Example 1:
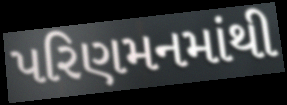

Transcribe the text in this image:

પરિણમનમાંથી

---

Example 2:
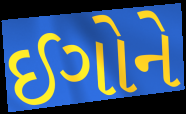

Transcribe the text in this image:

ઈગોને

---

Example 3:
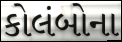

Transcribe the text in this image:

કોલંબોના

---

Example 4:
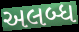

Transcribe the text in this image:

અલબ્ધ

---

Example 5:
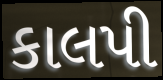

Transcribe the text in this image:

કાલપી